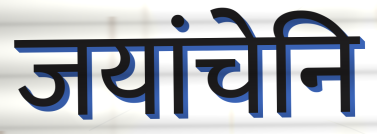
जयांचेनि